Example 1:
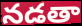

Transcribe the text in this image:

నడతా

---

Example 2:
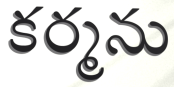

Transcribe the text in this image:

కర్మను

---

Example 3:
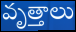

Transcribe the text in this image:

వృత్తాలు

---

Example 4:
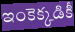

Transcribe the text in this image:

ఇంకెక్కడికీ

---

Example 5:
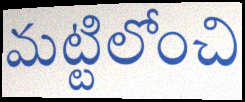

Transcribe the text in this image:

మట్టిలోంచి